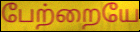
பேற்றையே